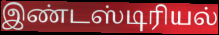
இண்டஸ்டிரியல்